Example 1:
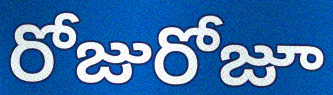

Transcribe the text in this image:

రోజురోజూ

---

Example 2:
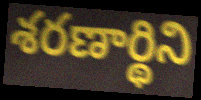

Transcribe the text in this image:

శరణార్థిని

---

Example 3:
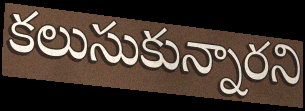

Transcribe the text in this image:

కలుసుకున్నారని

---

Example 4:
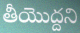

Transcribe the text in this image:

తీయొద్దని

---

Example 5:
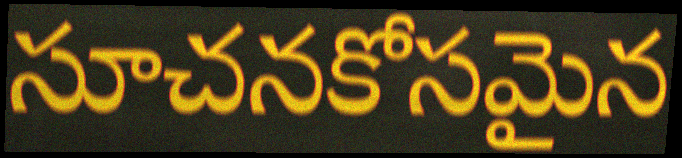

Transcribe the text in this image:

సూచనకోసమైన